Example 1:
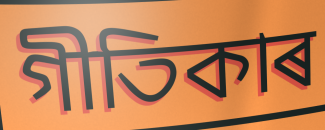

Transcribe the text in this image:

গীতিকাৰ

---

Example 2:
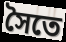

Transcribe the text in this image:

সৈতে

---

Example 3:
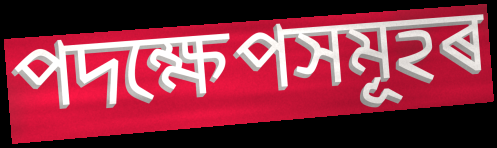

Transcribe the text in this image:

পদক্ষেপসমূহৰ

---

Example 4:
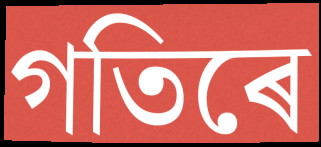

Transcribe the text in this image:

গতিৰে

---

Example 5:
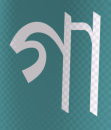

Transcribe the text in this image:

গা